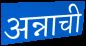
अन्नाची